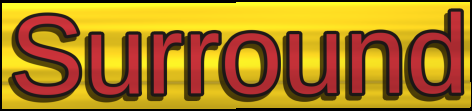
Surround